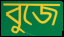
বুজে